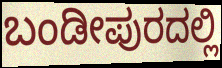
ಬಂಡೀಪುರದಲ್ಲಿ